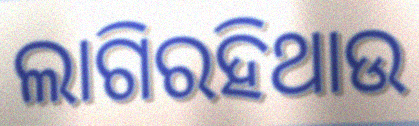
ଲାଗିରହିଥାଉ